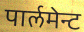
पार्लमेन्ट